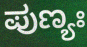
ಪುಣ್ಯಃ